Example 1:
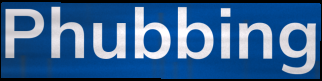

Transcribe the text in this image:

Phubbing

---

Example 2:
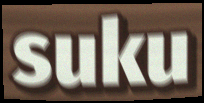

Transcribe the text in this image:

suku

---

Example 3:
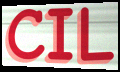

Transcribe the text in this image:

CIL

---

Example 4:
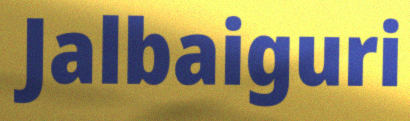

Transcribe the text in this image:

Jalbaiguri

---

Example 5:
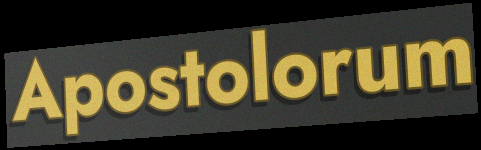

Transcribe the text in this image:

Apostolorum